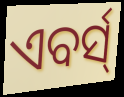
ଏବର୍ସ୍